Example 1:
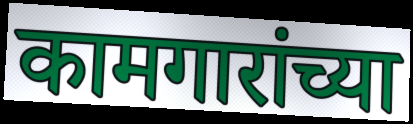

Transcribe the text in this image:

कामगारांच्या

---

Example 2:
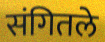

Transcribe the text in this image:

संगितले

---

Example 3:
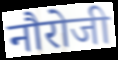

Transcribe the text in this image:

नौरोजी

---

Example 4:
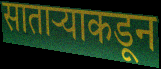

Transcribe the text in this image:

साताऱ्याकडून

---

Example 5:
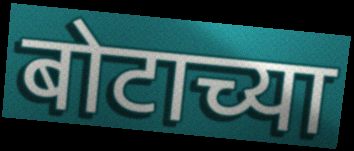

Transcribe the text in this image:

बोटाच्या